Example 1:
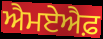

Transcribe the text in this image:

ਐਮਏਐਫ਼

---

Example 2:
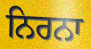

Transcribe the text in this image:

ਨਿਰਨਾ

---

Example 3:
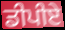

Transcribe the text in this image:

ਡੀਪੀਏ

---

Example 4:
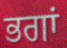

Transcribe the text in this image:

ਭਗਾਂ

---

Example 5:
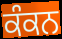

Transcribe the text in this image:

ਕੰਕਨ